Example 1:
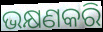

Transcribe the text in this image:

ଭକ୍ଷଣକରି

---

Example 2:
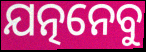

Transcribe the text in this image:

ଯତ୍ନନେବୁ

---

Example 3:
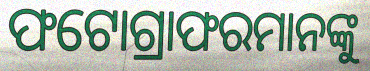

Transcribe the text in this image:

ଫଟୋଗ୍ରାଫରମାନଙ୍କୁ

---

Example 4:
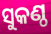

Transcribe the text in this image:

ସୁକଣ୍ଠ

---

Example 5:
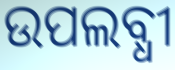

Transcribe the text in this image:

ଉପଲବ୍ଧୀ